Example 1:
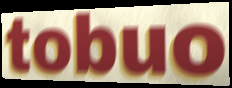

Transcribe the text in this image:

tobuo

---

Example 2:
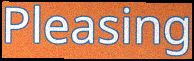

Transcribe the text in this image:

Pleasing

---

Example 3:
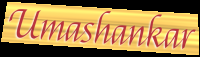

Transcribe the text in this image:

Umashankar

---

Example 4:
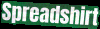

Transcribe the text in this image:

Spreadshirt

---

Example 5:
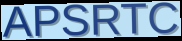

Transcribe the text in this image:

APSRTC